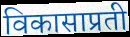
विकासाप्रती